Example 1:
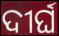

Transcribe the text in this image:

ଦୀର୍ଘ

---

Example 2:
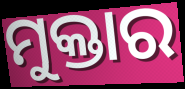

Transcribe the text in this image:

ମୁକ୍ତାର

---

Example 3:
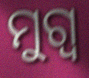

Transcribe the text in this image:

ମୁଗ୍ୱ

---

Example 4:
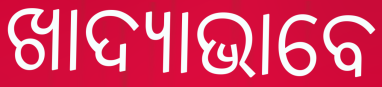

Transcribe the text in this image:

ଖାଦ୍ୟାଭାବେ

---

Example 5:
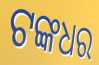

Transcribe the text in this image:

ଟଙ୍କଧର